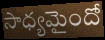
సాధ్యమైందో